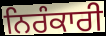
ਨਿਰੰਕਾਰੀ